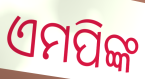
ଏମପିଙ୍କ